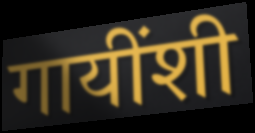
गायींशी